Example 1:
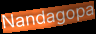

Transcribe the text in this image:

Nandagopa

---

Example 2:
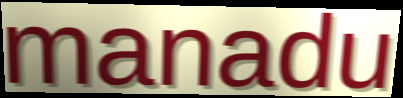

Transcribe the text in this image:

manadu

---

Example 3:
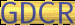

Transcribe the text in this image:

GDCR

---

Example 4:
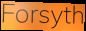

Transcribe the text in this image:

Forsyth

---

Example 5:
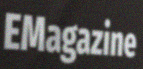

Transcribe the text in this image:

EMagazine